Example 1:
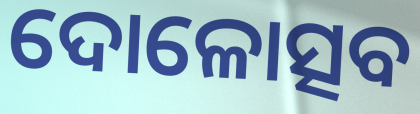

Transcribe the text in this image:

ଦୋଳୋତ୍ସବ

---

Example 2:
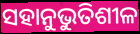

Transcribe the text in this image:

ସହାନୁଭୁତିଶୀଳ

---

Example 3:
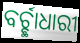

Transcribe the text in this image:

ବର୍ଚ୍ଛାଧାରୀ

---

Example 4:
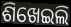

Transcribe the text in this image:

ଶିଖେଇଲି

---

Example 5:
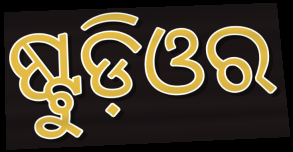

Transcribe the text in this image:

ଷ୍ଟୁଡ଼ିଓର